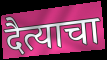
दैत्याचा